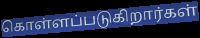
கொள்ளப்படுகிறார்கள்